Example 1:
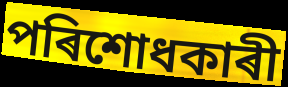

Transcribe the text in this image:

পৰিশোধকাৰী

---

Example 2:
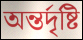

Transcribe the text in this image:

অন্তৰ্দৃষ্টি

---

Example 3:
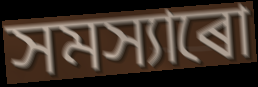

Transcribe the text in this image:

সমস্যাৰো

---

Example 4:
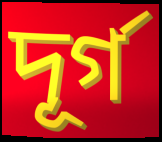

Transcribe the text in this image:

দূৰ্গ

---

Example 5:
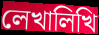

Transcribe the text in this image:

লেখালিখি